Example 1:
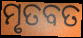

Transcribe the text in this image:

ମୃତବତ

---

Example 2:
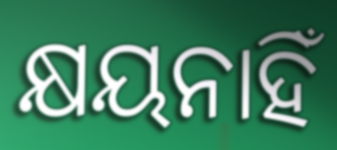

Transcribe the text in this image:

କ୍ଷୟନାହିଁ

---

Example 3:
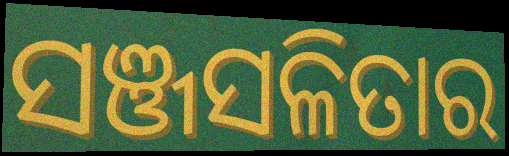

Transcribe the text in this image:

ସଞ୍ଜସଳିତାର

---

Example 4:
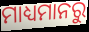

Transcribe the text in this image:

ମାଧ୍ୟମାନରୁ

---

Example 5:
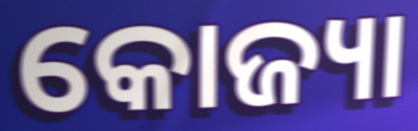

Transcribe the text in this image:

କୋଜ୍ୟା